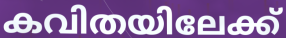
കവിതയിലേക്ക്